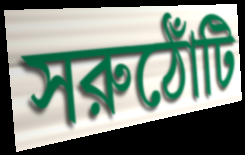
সরুঠোঁটি